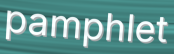
pamphlet